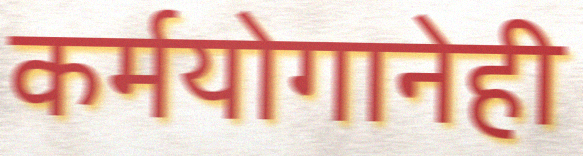
कर्मयोगानेही